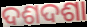
ଦଶଦଶା